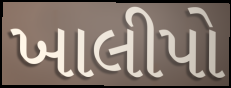
ખાલીપો